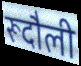
रूदौली